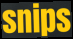
snips